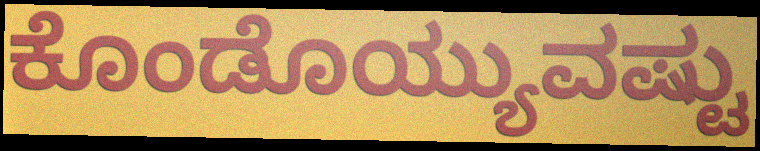
ಕೊಂಡೊಯ್ಯುವಷ್ಟು